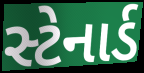
સ્ટેનાર્ડ